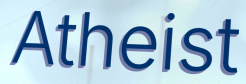
Atheist